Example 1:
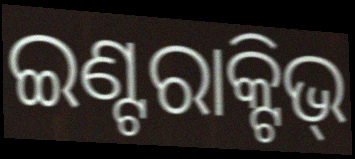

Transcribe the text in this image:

ଇଣ୍ଟରାକ୍ଟିଭ୍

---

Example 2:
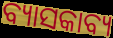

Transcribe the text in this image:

ବ୍ୟାସକାବ୍ୟ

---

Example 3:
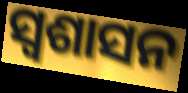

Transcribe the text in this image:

ସ୍ବଶାସନ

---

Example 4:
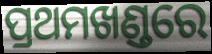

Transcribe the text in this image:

ପ୍ରଥମଖଣ୍ଡରେ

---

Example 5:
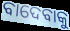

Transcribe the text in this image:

ବାଦେବାକୁ